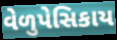
વેળુપેસિકાય